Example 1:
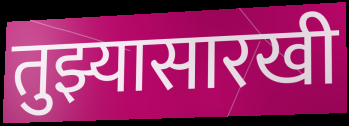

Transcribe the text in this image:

तुझ्यासारखी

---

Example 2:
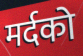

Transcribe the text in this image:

मर्दको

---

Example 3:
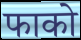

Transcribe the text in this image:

फाको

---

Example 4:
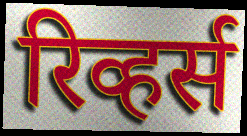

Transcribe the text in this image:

रिव्हर्स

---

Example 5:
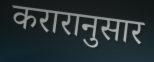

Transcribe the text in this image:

करारानुसार